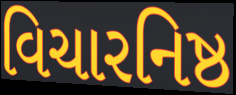
વિચારનિષ્ઠ